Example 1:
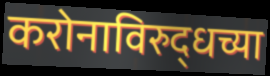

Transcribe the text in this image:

करोनाविरुद्धच्या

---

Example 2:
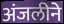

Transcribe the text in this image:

अंजलीने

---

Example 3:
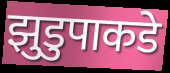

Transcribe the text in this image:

झुडुपाकडे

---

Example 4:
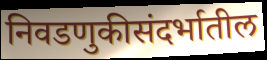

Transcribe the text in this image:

निवडणुकीसंदर्भातील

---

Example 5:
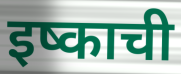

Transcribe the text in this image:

इष्काची